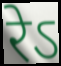
रेऽ